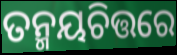
ତନ୍ମୟଚିତ୍ତରେ